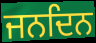
ਜਨਦਿਨ